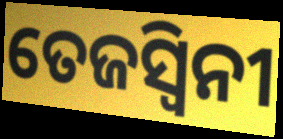
ତେଜସ୍ଵିନୀ